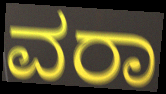
ವರಾ